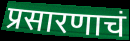
प्रसारणाचं